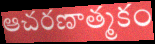
ఆచరణాత్మకం